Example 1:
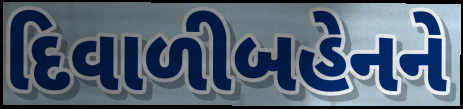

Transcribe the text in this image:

દિવાળીબહેનને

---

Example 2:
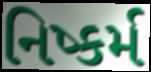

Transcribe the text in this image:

નિષ્કર્મ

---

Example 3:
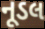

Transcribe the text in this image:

નૂડલ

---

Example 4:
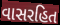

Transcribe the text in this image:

વાસરહિત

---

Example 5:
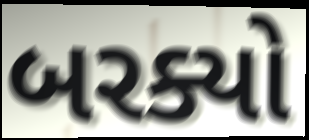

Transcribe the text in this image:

બરક્યો